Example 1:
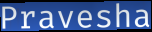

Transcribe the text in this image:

Pravesha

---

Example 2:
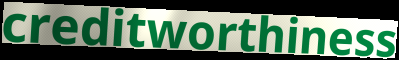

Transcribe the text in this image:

creditworthiness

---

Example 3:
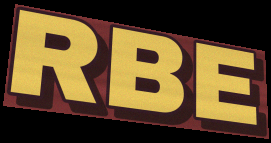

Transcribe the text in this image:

RBE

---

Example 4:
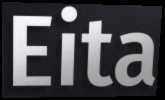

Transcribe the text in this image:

Eita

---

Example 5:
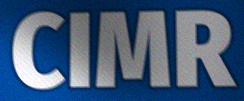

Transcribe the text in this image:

CIMR